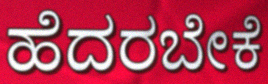
ಹೆದರಬೇಕೆ